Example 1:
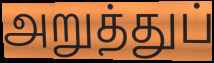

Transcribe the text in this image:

அறுத்துப்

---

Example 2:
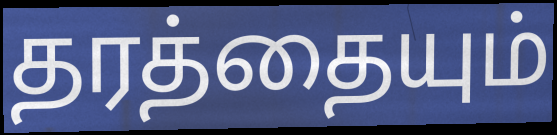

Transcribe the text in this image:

தரத்தையும்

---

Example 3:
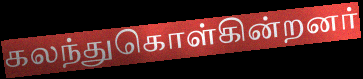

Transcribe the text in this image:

கலந்துகொள்கின்றனர்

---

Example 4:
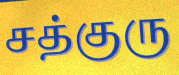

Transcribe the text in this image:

சத்குரு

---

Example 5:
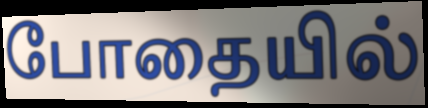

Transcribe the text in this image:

போதையில்